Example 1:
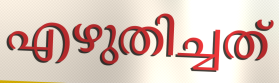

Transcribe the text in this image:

എഴുതിച്ചത്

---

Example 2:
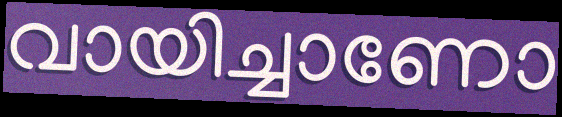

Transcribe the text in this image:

വായിച്ചാണോ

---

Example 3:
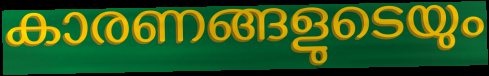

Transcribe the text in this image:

കാരണങ്ങളുടെയും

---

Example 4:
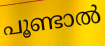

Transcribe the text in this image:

പൂണ്ടാൽ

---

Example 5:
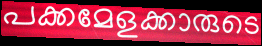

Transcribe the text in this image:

പക്കമേളക്കാരുടെ